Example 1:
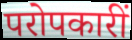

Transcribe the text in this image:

परोपकारीं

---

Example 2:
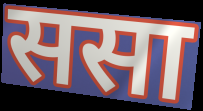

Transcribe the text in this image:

ससा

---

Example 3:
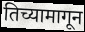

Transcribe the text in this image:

तिच्यामागून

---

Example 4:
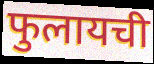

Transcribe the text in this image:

फुलायची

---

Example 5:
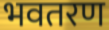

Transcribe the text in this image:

भवतरण